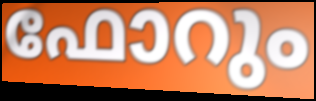
ഫോറും